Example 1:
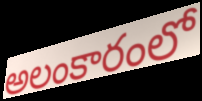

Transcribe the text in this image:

అలంకారంలో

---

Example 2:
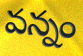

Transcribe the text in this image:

వన్నం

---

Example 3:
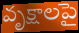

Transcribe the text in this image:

వృక్షాలపై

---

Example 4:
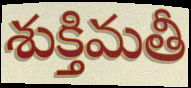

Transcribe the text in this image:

శుక్తిమతీ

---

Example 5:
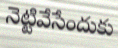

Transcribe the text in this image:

నెట్టివేసేందుకు